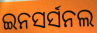
ଇନସର୍ସନଲ